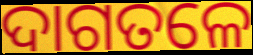
ଦାଗତଳେ